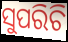
ସୁପରିଚି